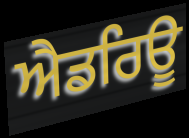
ਐਡਰਿਊ